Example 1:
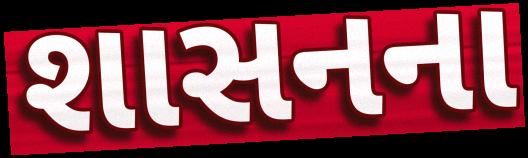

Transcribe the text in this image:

શાસનના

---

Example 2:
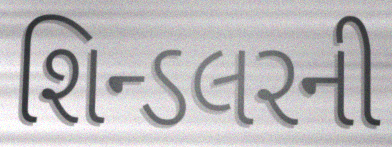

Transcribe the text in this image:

શિન્ડલરની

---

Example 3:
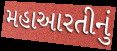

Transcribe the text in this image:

મહાઆરતીનું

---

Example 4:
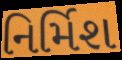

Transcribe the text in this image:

નિર્મિશ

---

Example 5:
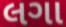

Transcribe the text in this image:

લગા